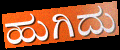
ಹುಗಿದು